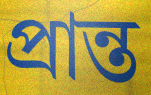
প্ৰান্ত